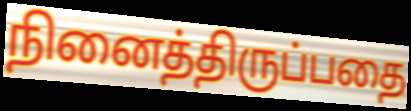
நினைத்திருப்பதை